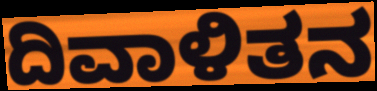
ದಿವಾಳಿತನ